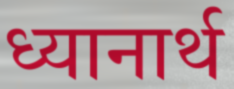
ध्यानार्थ